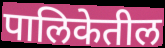
पालिकेतील